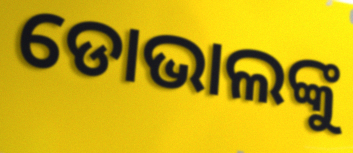
ଡୋଭାଲଙ୍କୁ